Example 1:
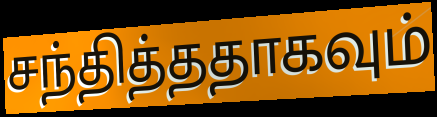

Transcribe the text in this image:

சந்தித்ததாகவும்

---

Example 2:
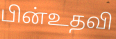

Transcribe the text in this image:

பின்உதவி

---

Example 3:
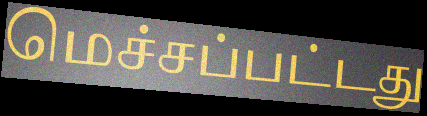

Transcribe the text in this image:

மெச்சப்பட்டது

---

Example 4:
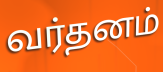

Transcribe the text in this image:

வர்தனம்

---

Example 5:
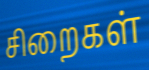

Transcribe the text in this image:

சிறைகள்